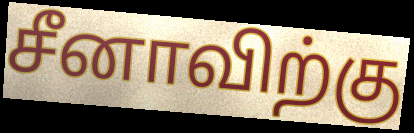
சீனாவிற்கு